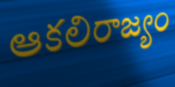
ఆకలిరాజ్యం